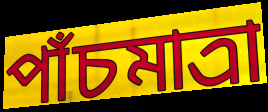
পাঁচমাত্রা